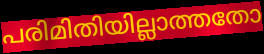
പരിമിതിയില്ലാത്തതോ